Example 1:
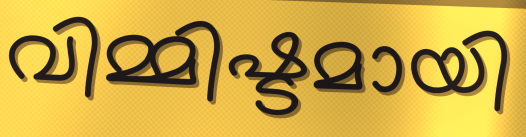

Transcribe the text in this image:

വിമ്മിഷ്ടമായി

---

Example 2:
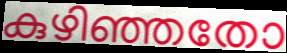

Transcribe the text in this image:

കുഴിഞ്ഞതോ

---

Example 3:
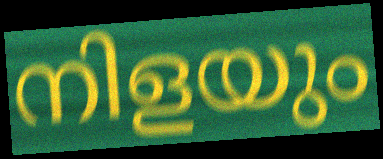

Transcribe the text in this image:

നിളയും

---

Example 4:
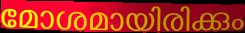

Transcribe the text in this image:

മോശമായിരിക്കും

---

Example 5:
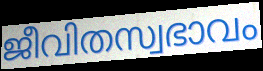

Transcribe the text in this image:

ജീവിതസ്വഭാവം